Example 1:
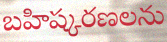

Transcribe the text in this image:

బహిష్కరణలను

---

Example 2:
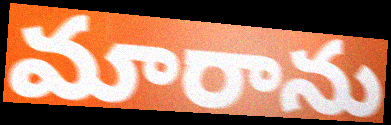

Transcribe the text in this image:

మారాను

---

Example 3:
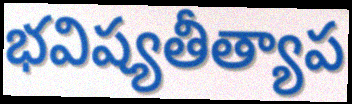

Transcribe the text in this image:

భవిష్యతీత్యాప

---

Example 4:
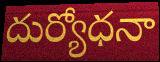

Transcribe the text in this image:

దుర్యోధనా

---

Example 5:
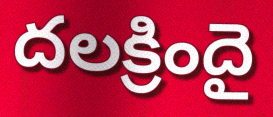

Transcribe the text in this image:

దలక్రిందై